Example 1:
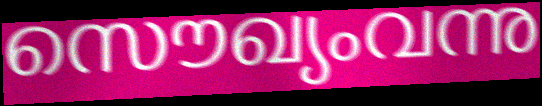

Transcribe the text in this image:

സൌഖ്യംവന്നു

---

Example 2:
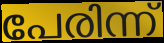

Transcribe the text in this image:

പേരിന്ന്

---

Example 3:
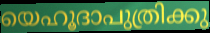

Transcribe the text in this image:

യെഹൂദാപുത്രിക്കു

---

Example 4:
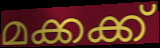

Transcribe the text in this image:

മക്കക്ക്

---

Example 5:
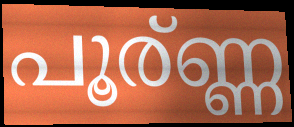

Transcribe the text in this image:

പൂര്ണ്ണ